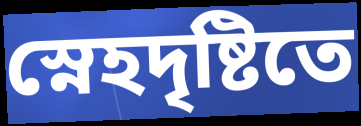
স্নেহদৃষ্টিতে